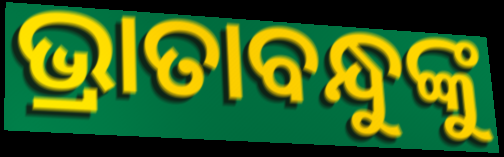
ଭ୍ରାତାବନ୍ଧୁଙ୍କୁ